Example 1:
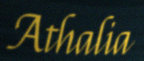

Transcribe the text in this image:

Athalia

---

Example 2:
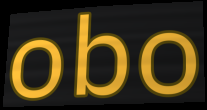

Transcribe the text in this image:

obo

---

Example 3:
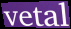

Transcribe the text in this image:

vetal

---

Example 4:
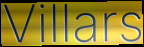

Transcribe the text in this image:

Villars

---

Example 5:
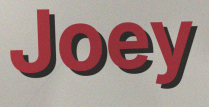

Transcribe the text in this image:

Joey